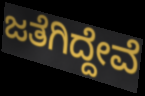
ಜತೆಗಿದ್ದೇವೆ